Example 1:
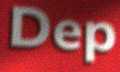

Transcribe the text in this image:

Dep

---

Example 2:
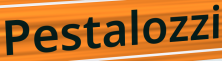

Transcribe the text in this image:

Pestalozzi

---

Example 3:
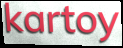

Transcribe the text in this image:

kartoy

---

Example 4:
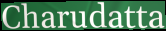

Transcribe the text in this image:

Charudatta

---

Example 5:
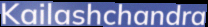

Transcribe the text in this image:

Kailashchandra